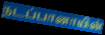
நடப்பானாயின்